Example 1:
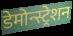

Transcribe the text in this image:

डेमोन्स्ट्रेशन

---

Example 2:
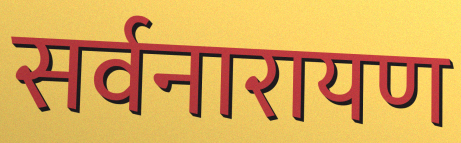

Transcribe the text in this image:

सर्वनारायण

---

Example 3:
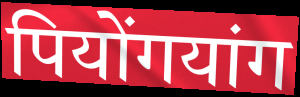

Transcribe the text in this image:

पियोंगयांग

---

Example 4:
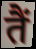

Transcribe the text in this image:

तैं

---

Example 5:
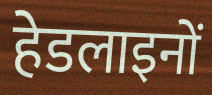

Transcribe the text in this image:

हेडलाइनों